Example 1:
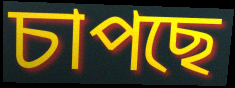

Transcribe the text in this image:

চাপছে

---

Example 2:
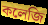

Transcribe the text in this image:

কলেজি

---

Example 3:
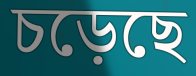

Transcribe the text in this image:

চড়েছে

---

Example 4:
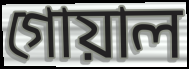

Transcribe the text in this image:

গোয়াল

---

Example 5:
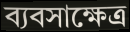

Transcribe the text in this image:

ব্যবসাক্ষেত্র